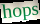
hops